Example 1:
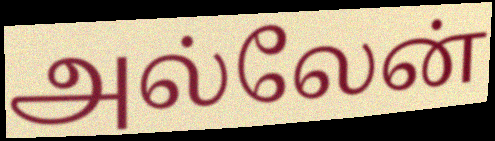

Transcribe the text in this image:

அல்லேன்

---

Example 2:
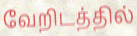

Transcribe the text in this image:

வேறிடத்தில்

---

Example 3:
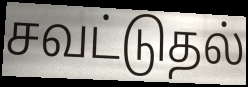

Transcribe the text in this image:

சவட்டுதல்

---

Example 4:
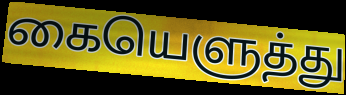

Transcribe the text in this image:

கையெளுத்து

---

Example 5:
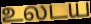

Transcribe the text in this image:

உலடய